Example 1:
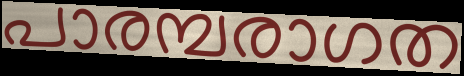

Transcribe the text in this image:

പാരമ്പരാഗത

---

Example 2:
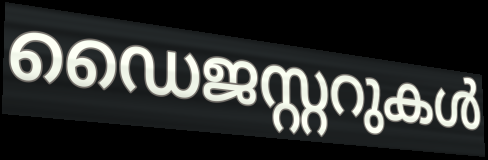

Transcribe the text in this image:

ഡൈജസ്റ്ററുകൾ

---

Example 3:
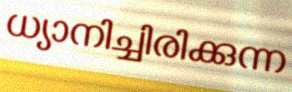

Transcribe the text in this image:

ധ്യാനിച്ചിരിക്കുന്ന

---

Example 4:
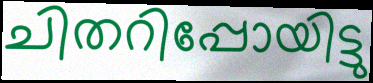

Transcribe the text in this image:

ചിതറിപ്പോയിട്ടു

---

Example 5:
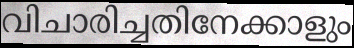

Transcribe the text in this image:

വിചാരിച്ചതിനേക്കാളും